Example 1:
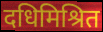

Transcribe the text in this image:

दधिमिश्रित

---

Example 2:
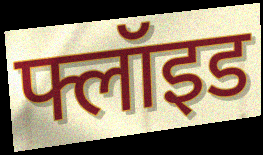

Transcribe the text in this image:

फ्लॉइड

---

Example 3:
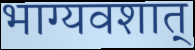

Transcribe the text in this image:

भाग्यवशात्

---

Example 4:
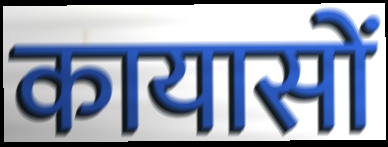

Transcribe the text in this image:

कायासों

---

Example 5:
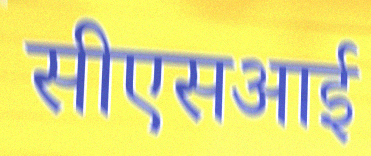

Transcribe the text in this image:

सीएसआई